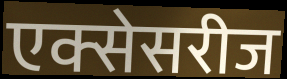
एक्सेसरीज